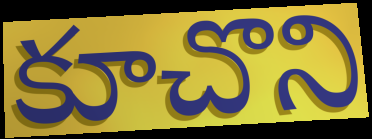
కూచొని